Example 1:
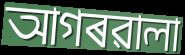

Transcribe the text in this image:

আগৰৱালা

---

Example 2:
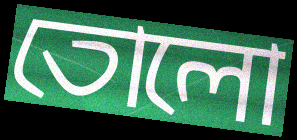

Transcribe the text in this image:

তোলো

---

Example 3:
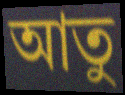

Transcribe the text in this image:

আতু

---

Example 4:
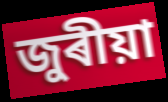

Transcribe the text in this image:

জুৰীয়া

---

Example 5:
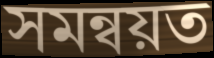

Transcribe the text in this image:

সমন্বয়ত